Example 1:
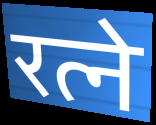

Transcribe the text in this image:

रत्ने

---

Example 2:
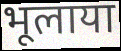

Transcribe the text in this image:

भूलाया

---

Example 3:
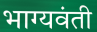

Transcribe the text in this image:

भाग्यवंती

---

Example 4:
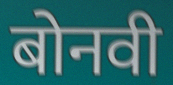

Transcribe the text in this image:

बोनवी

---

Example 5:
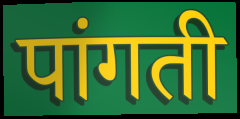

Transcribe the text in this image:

पांगती